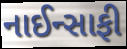
નાઈન્સાફી